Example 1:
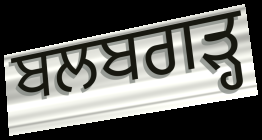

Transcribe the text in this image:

ਬਲਬਗੜ੍ਹ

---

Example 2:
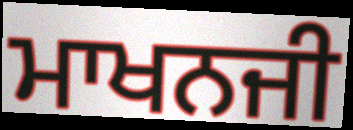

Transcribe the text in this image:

ਮਾਖਨਜੀ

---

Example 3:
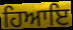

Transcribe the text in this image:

ਹਿਆਇ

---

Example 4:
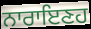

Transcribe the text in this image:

ਨਾਰਾਇਣਹ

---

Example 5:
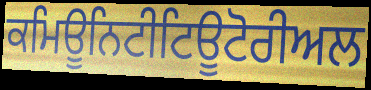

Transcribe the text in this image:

ਕਮਿਊਨਿਟੀਟਿਊਟੋਰੀਅਲ